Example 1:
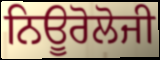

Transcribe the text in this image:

ਨਿਊਰੋਲੋਜੀ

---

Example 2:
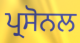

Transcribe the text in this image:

ਪ੍ਰਸੋਨਲ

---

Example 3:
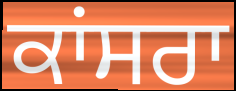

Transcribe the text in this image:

ਕਾਂਸਰਾ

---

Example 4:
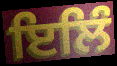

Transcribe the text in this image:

ਇਲਿੰ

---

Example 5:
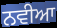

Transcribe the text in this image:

ਨਵੀਆ